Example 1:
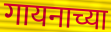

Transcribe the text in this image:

गायनाच्या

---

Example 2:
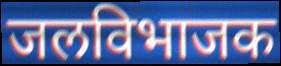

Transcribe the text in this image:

जलविभाजक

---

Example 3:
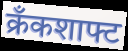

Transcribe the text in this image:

क्रँकशाफ्ट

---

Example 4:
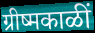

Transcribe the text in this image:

ग्रीष्मकाळीं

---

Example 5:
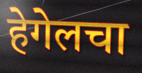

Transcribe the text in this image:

हेगेलचा